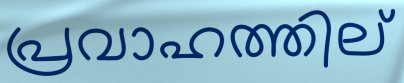
പ്രവാഹത്തില്